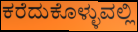
ಕರೆದುಕೊಳ್ಳುವಲ್ಲಿ